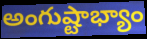
అంగుష్టాభ్యాం